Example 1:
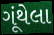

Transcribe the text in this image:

ગૂંથેલા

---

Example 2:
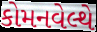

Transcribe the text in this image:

કોમનવેલ્થે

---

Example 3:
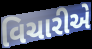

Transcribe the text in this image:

વિચારીએ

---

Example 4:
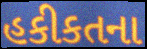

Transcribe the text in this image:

હકીકતના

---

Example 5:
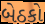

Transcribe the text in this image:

બેઠકો